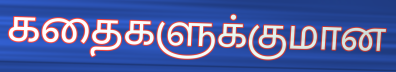
கதைகளுக்குமான